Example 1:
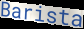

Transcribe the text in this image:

Barista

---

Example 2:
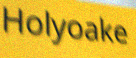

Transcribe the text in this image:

Holyoake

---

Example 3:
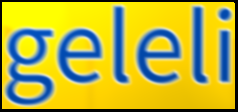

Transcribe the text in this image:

geleli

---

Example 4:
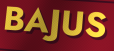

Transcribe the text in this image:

BAJUS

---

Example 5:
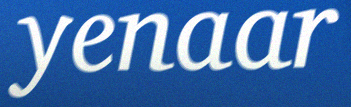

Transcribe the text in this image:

yenaar